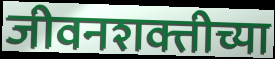
जीवनशक्तीच्या